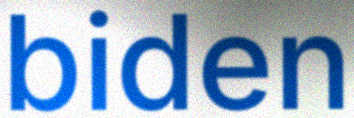
biden